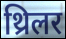
थ्रिलर